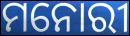
ମନୋରୀ